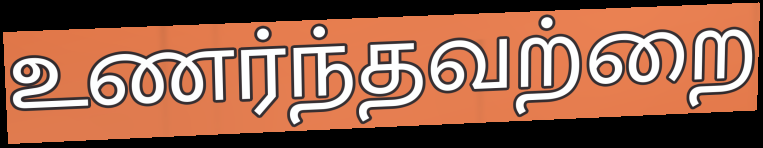
உணர்ந்தவற்றை